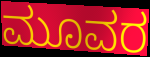
ಮೂವರ